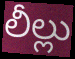
లీల్లు